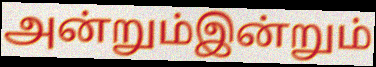
அன்றும்இன்றும்